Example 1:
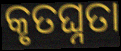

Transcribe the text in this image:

କୃତଘ୍ନତା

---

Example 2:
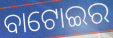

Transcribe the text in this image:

ବାଟୋଇର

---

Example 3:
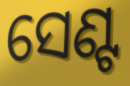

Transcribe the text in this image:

ସେଣ୍ଟ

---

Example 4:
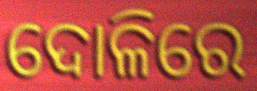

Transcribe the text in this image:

ଦୋଳିରେ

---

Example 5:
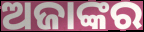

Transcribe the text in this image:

ଅଜାଙ୍କର